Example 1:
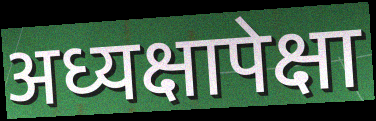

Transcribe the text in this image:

अध्यक्षापेक्षा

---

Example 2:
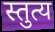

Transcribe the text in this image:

स्तुत्य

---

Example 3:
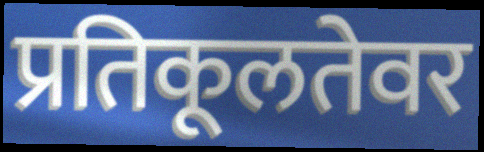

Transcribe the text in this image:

प्रतिकूलतेवर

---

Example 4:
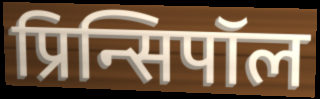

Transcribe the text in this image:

प्रिन्सिपॉल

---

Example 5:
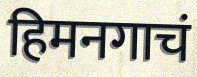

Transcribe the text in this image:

हिमनगाचं